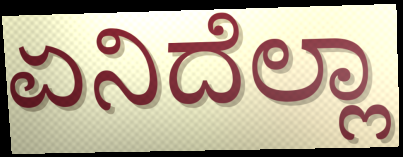
ಏನಿದೆಲ್ಲಾ